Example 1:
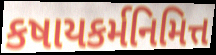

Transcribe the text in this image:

કષાયકર્મનિમિત્ત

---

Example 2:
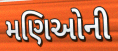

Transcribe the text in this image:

મણિઓની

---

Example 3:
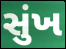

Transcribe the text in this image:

સુંખ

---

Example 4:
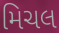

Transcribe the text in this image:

મિચલ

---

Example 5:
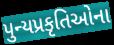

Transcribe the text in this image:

પુન્યપ્રકૃતિઓના